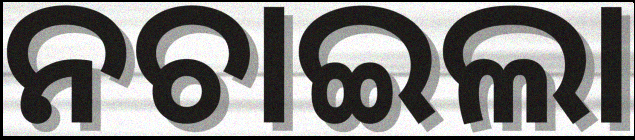
ନଚାଇଲା